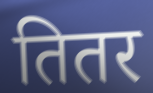
तितर